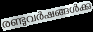
രണ്ടുവർഷങ്ങൾക്കു